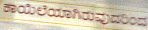
ಕಾಯಿಲೆಯಾಗಿರುವುದರಿಂದ